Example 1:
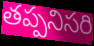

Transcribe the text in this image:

తప్పనిసరి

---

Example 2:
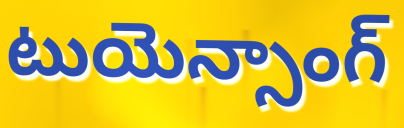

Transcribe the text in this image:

టుయెన్సాంగ్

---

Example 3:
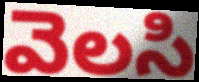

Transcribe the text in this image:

వెలసి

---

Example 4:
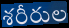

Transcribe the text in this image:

శరీరుల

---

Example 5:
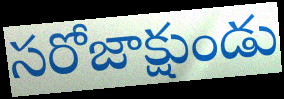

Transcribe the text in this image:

సరోజాక్షుండు